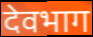
देवभाग